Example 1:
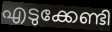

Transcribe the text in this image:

എടുക്കേണ്ടി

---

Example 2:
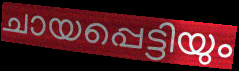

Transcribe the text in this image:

ചായപ്പെട്ടിയും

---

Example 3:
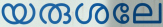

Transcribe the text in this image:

യരുശലേ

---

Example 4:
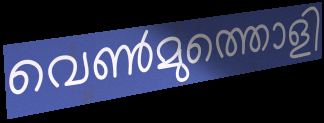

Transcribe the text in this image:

വെൺമുത്തൊളി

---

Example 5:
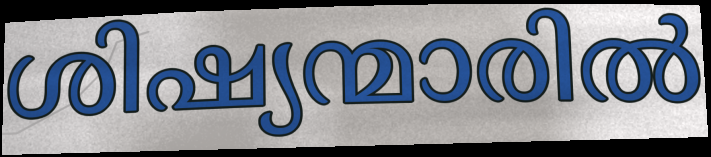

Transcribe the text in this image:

ശിഷ്യന്മാരിൽ